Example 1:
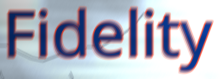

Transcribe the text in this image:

Fidelity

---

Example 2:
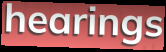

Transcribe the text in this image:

hearings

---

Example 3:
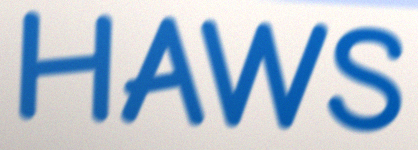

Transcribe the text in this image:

HAWS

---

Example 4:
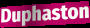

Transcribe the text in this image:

Duphaston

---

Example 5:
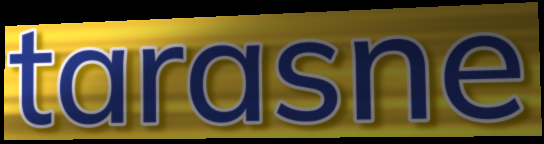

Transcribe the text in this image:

tarasne